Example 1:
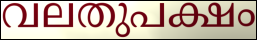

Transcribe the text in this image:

വലതുപക്ഷം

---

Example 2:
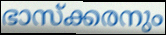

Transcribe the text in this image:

ഭാസ്ക്കരനും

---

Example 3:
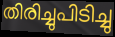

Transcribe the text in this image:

തിരിച്ചുപിടിച്ചു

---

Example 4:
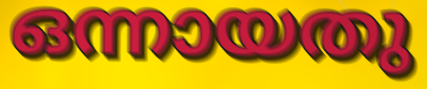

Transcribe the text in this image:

ഒന്നായതു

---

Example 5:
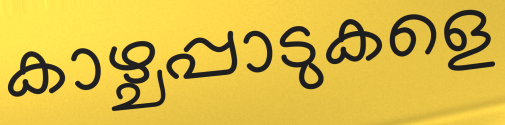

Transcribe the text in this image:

കാഴ്ചപ്പാടുകളെ